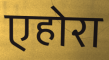
एहोरा